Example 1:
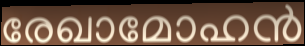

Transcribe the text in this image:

രേഖാമോഹൻ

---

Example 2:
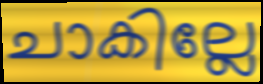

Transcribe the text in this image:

ചാകില്ലേ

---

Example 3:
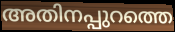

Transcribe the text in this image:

അതിനപ്പുറത്തെ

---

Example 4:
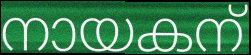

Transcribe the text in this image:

നായകന്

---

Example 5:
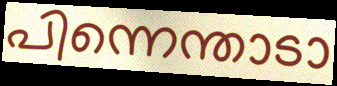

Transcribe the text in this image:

പിന്നെന്താടാ